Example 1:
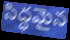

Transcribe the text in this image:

సిద్ధమైన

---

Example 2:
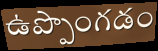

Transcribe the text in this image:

ఉప్పొంగడం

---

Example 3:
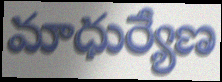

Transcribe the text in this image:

మాధుర్యేణ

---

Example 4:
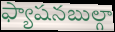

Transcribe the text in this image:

ఫ్యాషనబుల్గా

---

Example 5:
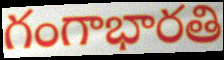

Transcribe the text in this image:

గంగాభారతి